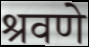
श्रवणे